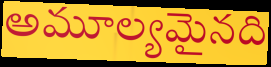
అమూల్యమైనది